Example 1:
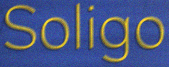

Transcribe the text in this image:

Soligo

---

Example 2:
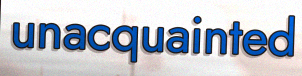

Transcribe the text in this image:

unacquainted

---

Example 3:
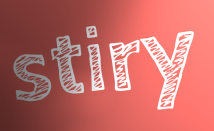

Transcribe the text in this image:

stiry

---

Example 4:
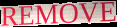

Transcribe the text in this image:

REMOVE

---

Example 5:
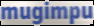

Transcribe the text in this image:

mugimpu